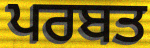
ਪਰਬਤ